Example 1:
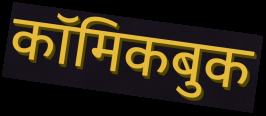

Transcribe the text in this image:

कॉमिकबुक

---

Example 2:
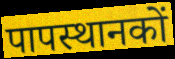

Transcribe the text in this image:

पापस्थानकों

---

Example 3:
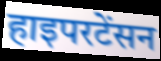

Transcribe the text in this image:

हाइपरटेंसन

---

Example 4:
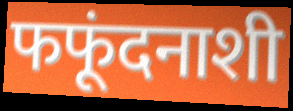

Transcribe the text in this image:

फफूंदनाशी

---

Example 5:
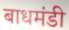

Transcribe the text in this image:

बाधमंडी